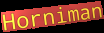
Horniman